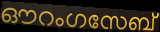
ഔറംഗസേബ്